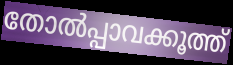
തോൽപ്പാവക്കൂത്ത്